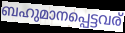
ബഹുമാനപ്പെട്ടവര്